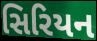
સિરિયન